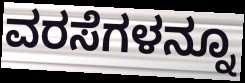
ವರಸೆಗಳನ್ನೂ